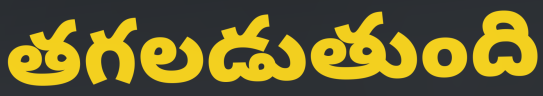
తగలడుతుంది